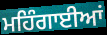
ਮਹਿੰਗਾਈਆਂ